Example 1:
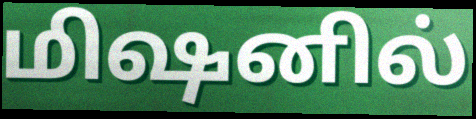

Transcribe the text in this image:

மிஷனில்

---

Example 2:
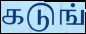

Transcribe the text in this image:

கடுங்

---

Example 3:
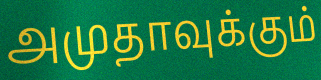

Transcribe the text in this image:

அமுதாவுக்கும்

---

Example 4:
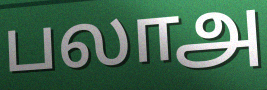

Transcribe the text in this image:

பலாஅ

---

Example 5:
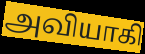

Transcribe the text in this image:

அவியாகி